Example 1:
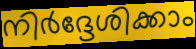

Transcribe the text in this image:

നിർദ്ദേശിക്കാം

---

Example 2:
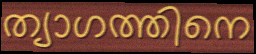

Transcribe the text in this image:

ത്യാഗത്തിനെ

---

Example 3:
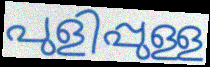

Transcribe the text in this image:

പുളിപ്പുള്ള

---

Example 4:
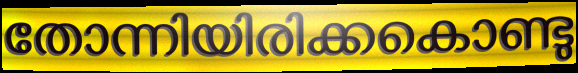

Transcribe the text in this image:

തോന്നിയിരിക്കകൊണ്ടു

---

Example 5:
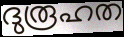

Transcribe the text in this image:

ദുരൂഹത